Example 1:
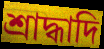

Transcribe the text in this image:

শ্রাদ্ধাদি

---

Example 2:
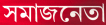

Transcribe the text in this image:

সমাজনেতা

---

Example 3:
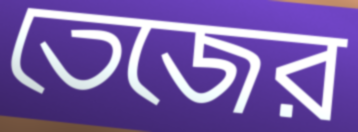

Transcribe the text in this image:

তেজের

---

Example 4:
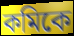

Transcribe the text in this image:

কমিকে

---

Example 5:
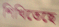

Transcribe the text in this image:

শিখিতেছে